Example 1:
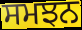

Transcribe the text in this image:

ਸਮਝਨ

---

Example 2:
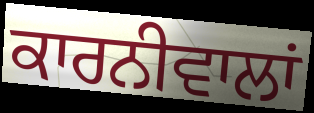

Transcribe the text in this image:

ਕਾਰਨੀਵਾਲਾਂ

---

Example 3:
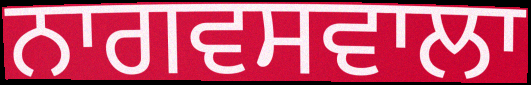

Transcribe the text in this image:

ਨਾਗਵਸਵਾਲਾ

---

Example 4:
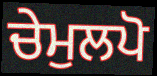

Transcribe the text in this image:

ਚੇਮੁਲਪੋ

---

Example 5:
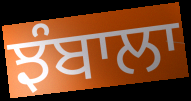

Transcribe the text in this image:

ਝੰਬਾਲਾ